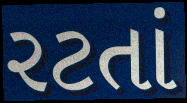
રટતાં